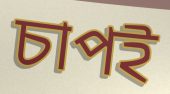
চাপই